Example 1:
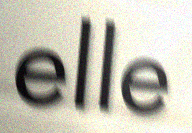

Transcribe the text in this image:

elle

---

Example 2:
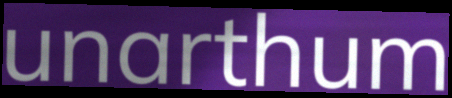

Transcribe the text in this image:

unarthum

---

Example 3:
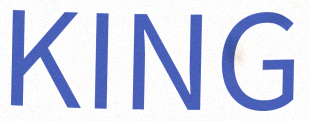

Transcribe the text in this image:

KING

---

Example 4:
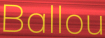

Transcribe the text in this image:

Ballou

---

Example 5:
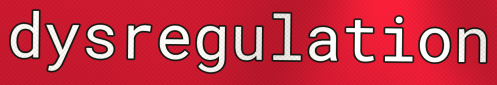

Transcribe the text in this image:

dysregulation